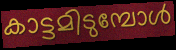
കാട്ടമിടുമ്പോൾ